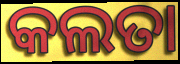
କଲତା